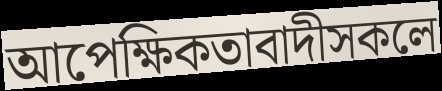
আপেক্ষিকতাবাদীসকলে